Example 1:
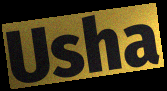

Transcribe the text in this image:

Usha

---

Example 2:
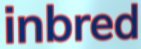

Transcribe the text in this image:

inbred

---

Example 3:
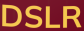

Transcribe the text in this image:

DSLR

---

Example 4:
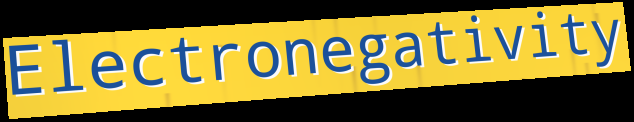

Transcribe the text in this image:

Electronegativity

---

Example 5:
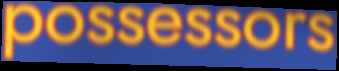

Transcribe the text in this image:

possessors